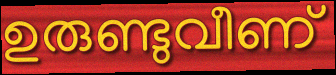
ഉരുണ്ടുവീണ്